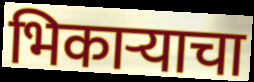
भिकाऱ्याचा